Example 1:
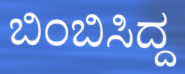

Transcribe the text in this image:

ಬಿಂಬಿಸಿದ್ದ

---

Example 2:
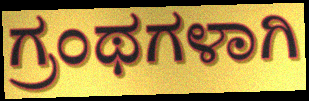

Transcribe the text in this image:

ಗ್ರಂಥಗಳಾಗಿ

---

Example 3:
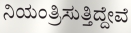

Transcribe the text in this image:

ನಿಯಂತ್ರಿಸುತ್ತಿದ್ದೇವೆ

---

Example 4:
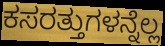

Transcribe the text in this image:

ಕಸರತ್ತುಗಳನ್ನೆಲ್ಲ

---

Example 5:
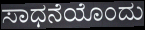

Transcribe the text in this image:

ಸಾಧನೆಯೊಂದು